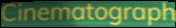
Cinematograph